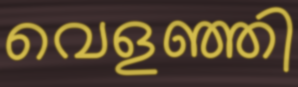
വെളഞ്ഞി